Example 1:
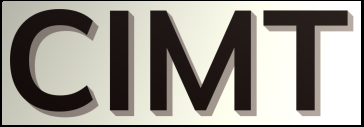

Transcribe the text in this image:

CIMT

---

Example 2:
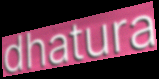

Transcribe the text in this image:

dhatura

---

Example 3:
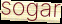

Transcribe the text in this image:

sogar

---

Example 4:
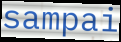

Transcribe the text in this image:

sampai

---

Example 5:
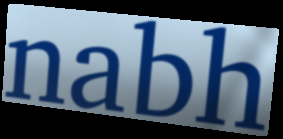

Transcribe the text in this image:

nabh